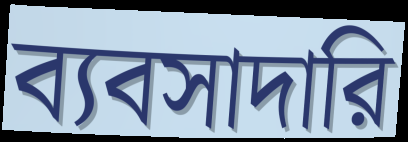
ব্যবসাদারি